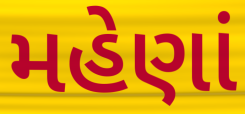
મહેણાં